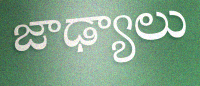
జాఢ్యాలు